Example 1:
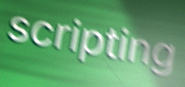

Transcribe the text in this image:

scripting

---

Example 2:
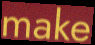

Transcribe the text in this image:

make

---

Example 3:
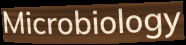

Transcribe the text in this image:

Microbiology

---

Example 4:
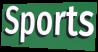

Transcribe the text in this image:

Sports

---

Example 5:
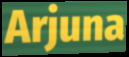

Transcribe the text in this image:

Arjuna